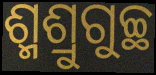
ଶ୍ମଶ୍ରୁଗୁଚ୍ଛ